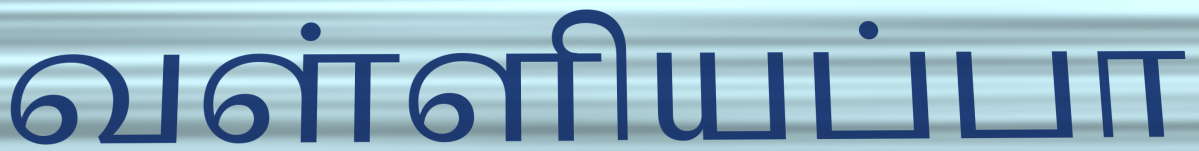
வள்ளியப்பா